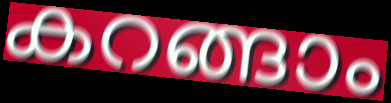
കറങ്ങാം